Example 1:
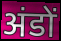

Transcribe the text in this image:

अंडों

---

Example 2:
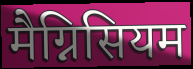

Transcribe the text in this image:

मैग्निसियम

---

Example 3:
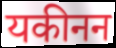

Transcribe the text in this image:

यकीनन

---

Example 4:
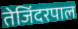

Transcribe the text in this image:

तेजिंदरपाल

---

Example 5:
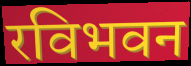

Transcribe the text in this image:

रविभवन